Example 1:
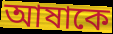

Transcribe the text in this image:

আষাকে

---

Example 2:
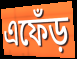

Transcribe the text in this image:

এফেঁড়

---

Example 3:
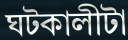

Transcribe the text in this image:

ঘটকালীটা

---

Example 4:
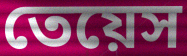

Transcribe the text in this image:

তেয়েস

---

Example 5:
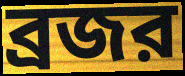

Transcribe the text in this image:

ব্রজর